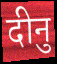
दीनु